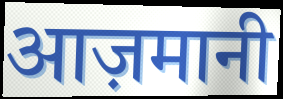
आज़मानी